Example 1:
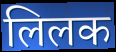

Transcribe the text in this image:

लिलक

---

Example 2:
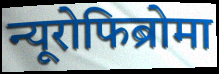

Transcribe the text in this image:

न्यूरोफिब्रोमा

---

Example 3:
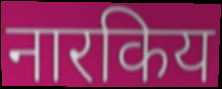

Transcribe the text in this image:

नारकिय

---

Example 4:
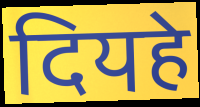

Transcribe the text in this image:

दियहे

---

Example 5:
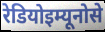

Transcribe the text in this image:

रेडियोइम्यूनोसे